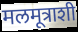
मलमूत्राशी